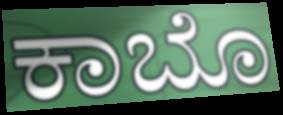
ಕಾಬೊ